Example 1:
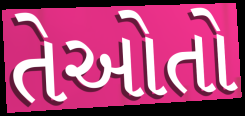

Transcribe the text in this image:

તેઓતો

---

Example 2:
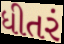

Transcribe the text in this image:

ધીતરં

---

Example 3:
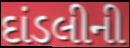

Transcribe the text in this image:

દાંડલીની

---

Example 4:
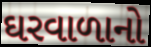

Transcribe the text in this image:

ઘરવાળાનો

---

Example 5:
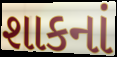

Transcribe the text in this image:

શાકનાં